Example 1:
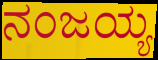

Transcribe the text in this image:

ನಂಜಯ್ಯ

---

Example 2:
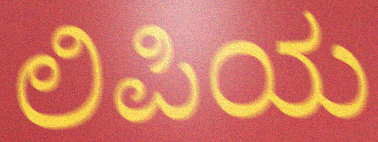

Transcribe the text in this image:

ಲಿಪಿಯ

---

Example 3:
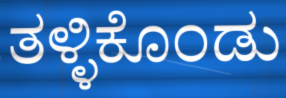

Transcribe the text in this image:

ತಳ್ಳಿಕೊಂಡು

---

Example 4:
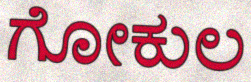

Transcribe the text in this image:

ಗೋಕುಲ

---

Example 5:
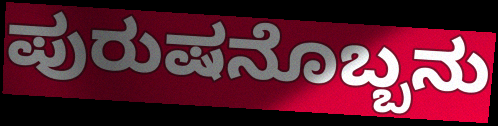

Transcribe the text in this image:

ಪುರುಷನೊಬ್ಬನು